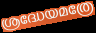
ശ്രദ്ധേയമത്രേ